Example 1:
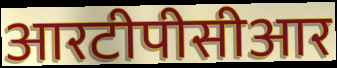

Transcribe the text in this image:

आरटीपीसीआर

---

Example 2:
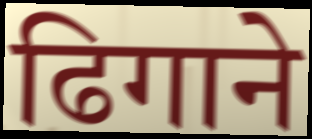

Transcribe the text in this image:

ढिगाने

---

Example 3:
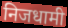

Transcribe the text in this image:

निजधामी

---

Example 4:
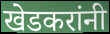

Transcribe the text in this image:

खेडकरांनी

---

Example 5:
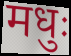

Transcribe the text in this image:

मधुः